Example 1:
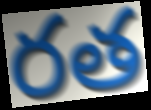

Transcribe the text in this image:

రత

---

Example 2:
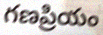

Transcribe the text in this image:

గణప్రియం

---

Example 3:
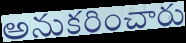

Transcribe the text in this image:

అనుకరించారు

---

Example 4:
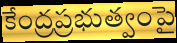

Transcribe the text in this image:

కేంద్రప్రభుత్వంపై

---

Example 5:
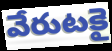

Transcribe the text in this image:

వేరుటకై